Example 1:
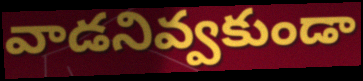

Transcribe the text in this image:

వాడనివ్వకుండా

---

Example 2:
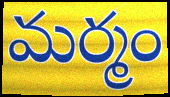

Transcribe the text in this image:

మర్మం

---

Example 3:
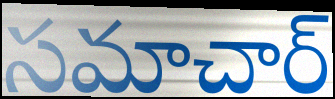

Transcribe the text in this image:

సమాచార్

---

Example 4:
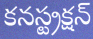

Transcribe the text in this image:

కనస్ట్రక్షన్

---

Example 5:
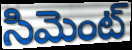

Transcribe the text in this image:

సిమెంట్